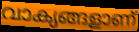
വാക്യങ്ങളാണ്